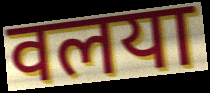
वलया